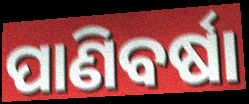
ପାଣିବର୍ଷା